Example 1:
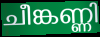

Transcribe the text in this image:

ചീങ്കണ്ണി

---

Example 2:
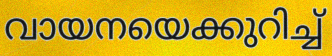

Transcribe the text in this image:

വായനയെക്കുറിച്ച്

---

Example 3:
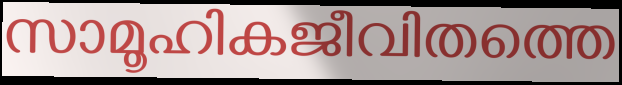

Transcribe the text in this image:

സാമൂഹികജീവിതത്തെ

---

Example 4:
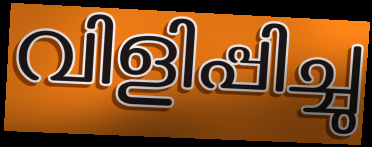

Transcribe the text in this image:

വിളിപ്പിച്ചു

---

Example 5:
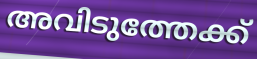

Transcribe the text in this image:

അവിടുത്തേക്ക്